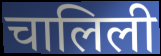
चालिली